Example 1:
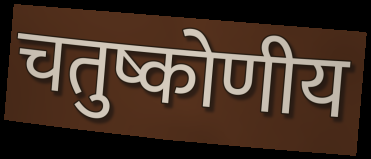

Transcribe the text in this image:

चतुष्कोणीय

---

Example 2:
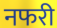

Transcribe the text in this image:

नफरी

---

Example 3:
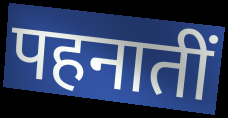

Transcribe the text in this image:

पहनातीं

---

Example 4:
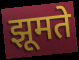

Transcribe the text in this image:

झूमते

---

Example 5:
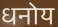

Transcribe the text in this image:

धनोय